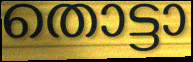
തൊട്ടാ